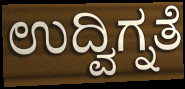
ಉದ್ವಿಗ್ನತೆ